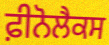
ਫ਼ੀਨੋਲੈਕਸ